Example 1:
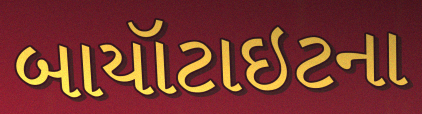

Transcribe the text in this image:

બાયૉટાઇટના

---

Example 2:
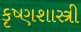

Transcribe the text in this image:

કૃષ્ણશાસ્ત્રી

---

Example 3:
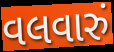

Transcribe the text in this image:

વલવારું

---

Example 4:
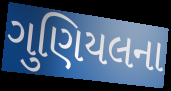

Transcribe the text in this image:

ગુણિયલના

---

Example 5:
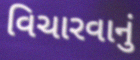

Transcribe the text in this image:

વિચારવાનું